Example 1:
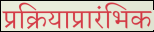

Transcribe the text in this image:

प्रक्रियाप्रारंभिक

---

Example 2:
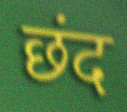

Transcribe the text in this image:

छंद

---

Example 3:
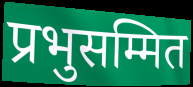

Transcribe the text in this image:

प्रभुसम्मित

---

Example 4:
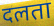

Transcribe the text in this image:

दलता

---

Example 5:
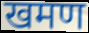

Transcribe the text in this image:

खमण